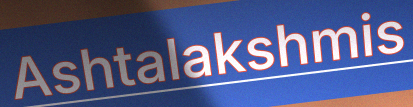
Ashtalakshmis